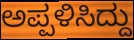
ಅಪ್ಪಳಿಸಿದ್ದು